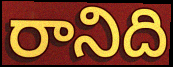
రానిది